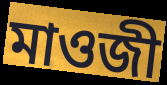
মাওজী